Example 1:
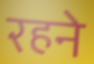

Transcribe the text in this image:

रहने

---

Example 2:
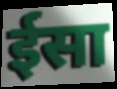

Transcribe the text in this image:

ईसा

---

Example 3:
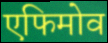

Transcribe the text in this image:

एफिमोव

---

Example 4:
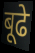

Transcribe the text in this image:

बूढे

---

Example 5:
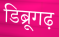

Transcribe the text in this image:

डिब्रूगढ़